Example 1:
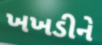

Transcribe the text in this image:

ખખડીને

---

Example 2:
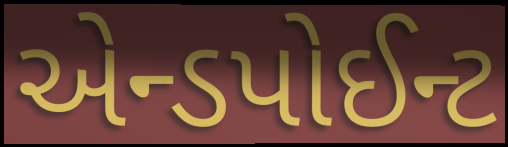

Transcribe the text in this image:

એન્ડપોઈન્ટ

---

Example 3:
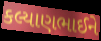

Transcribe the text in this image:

કલ્યાણભાઈને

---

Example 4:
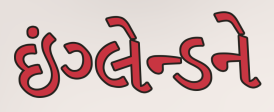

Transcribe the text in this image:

ઇંગ્લેન્ડને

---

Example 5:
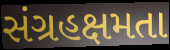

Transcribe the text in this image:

સંગ્રહક્ષમતા